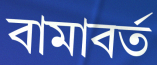
বামাবর্ত